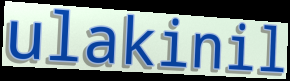
ulakinil